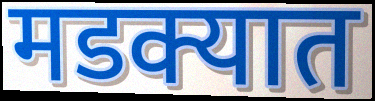
मडक्यात